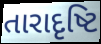
તારાદૃષ્ટિ